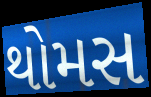
થોમસ